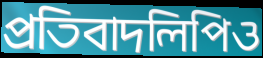
প্রতিবাদলিপিও